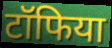
टॉफिया